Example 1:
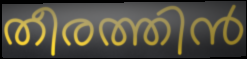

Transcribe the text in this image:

തീരത്തിൻ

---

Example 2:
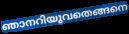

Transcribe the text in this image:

ഞാനറിയുവതെങ്ങനെ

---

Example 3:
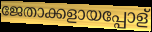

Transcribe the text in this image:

ജേതാക്കളായപ്പോള്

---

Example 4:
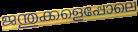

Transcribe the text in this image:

ജന്തുക്കളെപ്പോലെ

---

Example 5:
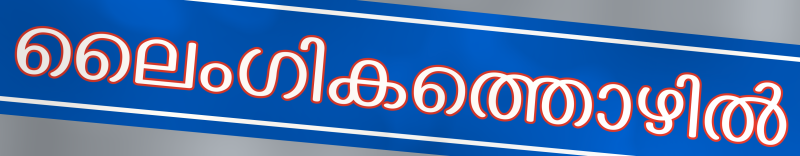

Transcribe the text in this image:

ലൈംഗികത്തൊഴിൽ